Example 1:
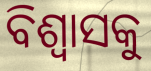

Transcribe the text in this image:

ବିଶ୍ୱାସକୁ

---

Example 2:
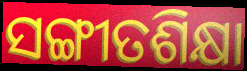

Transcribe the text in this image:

ସଙ୍ଗୀତଶିକ୍ଷା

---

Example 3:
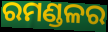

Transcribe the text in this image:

ରମଣ୍ଡଳର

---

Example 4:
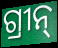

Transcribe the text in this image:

ଗ୍ରୀନ୍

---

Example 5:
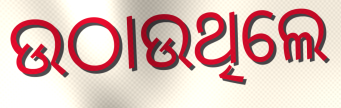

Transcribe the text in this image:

ଉଠାଉଥିଲେ